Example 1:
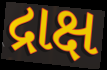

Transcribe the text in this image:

દ્રાક્ષ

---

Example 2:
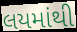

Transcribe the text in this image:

લયમાંથી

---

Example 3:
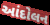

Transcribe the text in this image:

આંદોલન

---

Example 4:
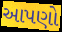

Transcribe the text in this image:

આપણો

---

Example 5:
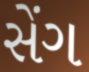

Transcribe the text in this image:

સેંગ